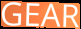
GEAR